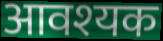
आवश्‍यक